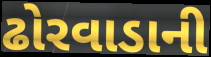
ઢોરવાડાની